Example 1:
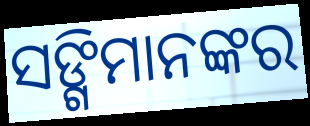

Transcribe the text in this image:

ସଙ୍ଗିମାନଙ୍କର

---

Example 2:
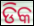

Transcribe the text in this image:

ଡିକ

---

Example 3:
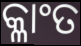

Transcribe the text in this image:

କ୍ଳାଂତ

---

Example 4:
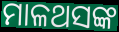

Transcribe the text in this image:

ମାଳଥସଙ୍କ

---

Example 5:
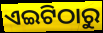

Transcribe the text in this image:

ଏଇଟିଠାରୁ